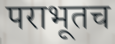
पराभूतच